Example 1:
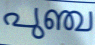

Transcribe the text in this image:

പുഞ്ച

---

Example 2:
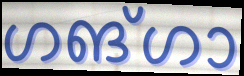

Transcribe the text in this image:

ഗങ്ഗാ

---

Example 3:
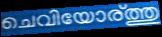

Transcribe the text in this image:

ചെവിയോര്ത്തു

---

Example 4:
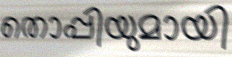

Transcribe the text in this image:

തൊപ്പിയുമായി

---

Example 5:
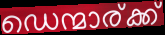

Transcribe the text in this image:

ഡെന്മാര്ക്ക്